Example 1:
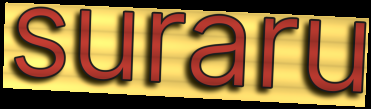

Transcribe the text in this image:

suraru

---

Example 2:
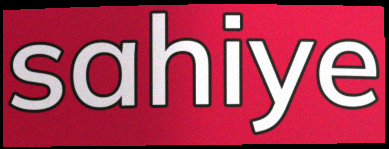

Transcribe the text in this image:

sahiye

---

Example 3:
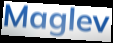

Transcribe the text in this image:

Maglev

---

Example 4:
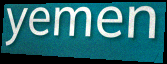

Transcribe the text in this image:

yemen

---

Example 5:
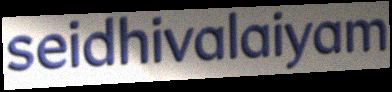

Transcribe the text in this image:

seidhivalaiyam